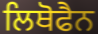
ਲਿਥੋਫੈਨ